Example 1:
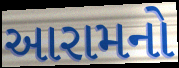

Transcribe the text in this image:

આરામનો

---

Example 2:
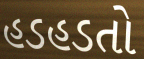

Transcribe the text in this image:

હડહડતો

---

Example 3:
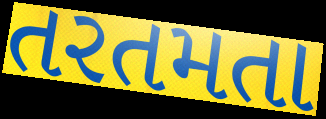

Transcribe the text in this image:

તરતમતા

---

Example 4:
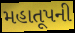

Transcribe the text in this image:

મહાતૂપની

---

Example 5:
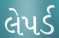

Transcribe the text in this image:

લેપર્ડ